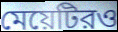
মেয়েটিরও